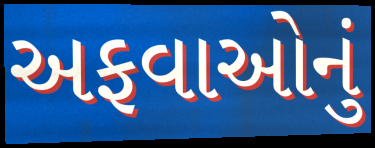
અફવાઓનું